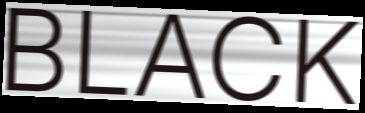
BLACK